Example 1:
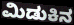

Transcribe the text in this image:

ಮಿಡುಕಿನ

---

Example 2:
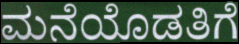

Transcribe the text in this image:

ಮನೆಯೊಡತಿಗೆ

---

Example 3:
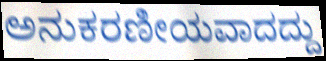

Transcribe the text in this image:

ಅನುಕರಣೀಯವಾದದ್ದು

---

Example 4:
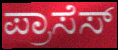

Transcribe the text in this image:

ಪ್ರಾಸೆಸ್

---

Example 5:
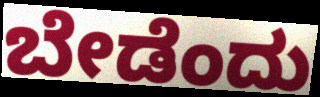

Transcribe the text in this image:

ಬೇಡೆಂದು